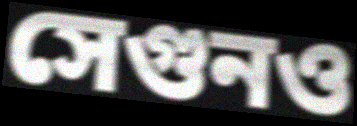
সেগুনও